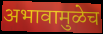
अभावामुळेच